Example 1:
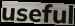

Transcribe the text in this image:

useful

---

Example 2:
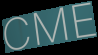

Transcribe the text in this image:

CME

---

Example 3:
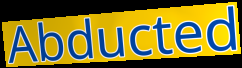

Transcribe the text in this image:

Abducted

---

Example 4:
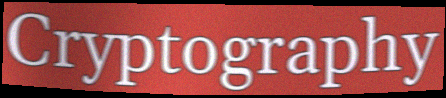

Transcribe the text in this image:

Cryptography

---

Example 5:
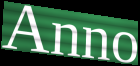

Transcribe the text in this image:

Anno